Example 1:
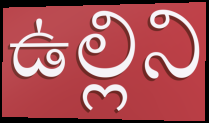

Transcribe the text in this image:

ఉల్లిని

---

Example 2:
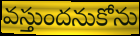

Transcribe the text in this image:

వస్తుందనుకోను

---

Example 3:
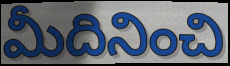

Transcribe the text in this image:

మీదినించి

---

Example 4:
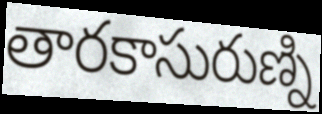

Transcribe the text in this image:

తారకాసురుణ్ని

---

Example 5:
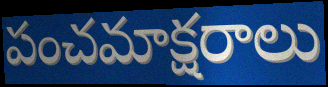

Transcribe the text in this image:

పంచమాక్షరాలు